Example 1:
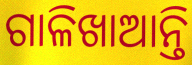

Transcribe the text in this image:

ଗାଳିଖାଆନ୍ତି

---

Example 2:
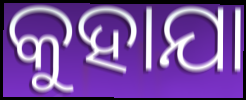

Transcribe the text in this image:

କୁହାଯା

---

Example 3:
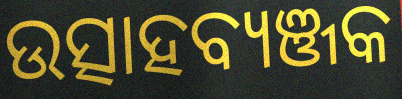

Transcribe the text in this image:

ଉତ୍ସାହବ୍ୟଞ୍ଜକ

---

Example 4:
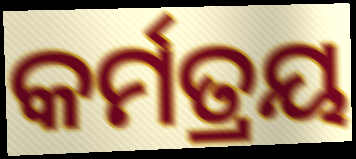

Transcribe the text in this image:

କର୍ମତ୍ରୟ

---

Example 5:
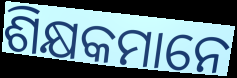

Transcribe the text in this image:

ଶିକ୍ଷକମାନେ